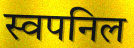
स्वपनिल